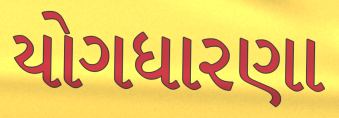
યોગધારણા